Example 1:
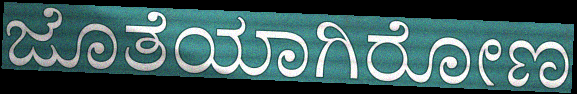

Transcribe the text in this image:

ಜೊತೆಯಾಗಿರೋಣ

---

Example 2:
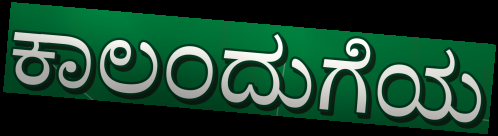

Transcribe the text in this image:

ಕಾಲಂದುಗೆಯ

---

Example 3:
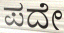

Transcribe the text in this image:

ಪದೇ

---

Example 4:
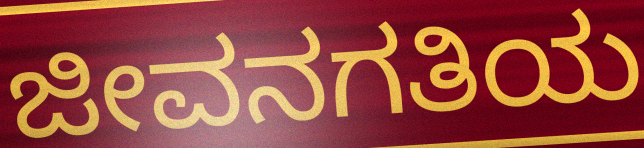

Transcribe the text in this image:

ಜೀವನಗತಿಯ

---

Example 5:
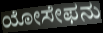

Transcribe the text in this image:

ಯೋಸೇಫನು